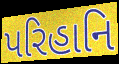
પરિહાનિ